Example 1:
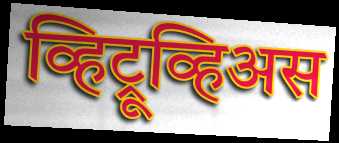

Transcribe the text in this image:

व्हिट्रूव्हिअस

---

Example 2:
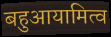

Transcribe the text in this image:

बहुआयामित्व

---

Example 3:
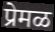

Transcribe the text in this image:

प्रेमळ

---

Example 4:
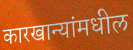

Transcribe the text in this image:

कारखान्यांमधील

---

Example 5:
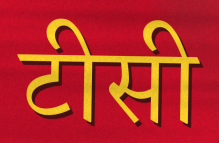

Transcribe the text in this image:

टीसी